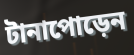
টানাপোড়েন